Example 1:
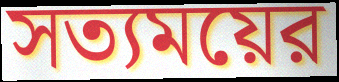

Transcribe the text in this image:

সত্যময়ের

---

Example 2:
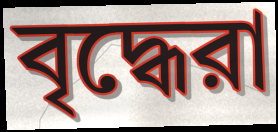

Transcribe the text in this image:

বৃদ্ধেরা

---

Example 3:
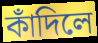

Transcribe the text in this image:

কাঁদিলে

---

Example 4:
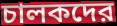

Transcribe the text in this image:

চালকদের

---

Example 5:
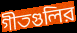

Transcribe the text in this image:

গীতগুলির